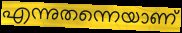
എന്നുതന്നെയാണ്